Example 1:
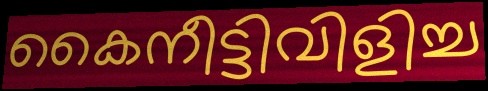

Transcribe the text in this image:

കൈനീട്ടിവിളിച്ച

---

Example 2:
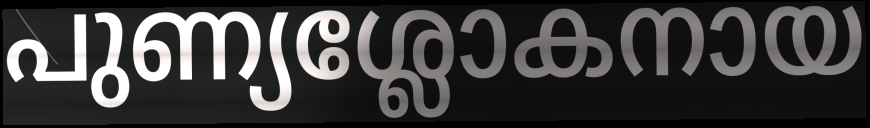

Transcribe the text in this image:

പുണ്യശ്ലോകനായ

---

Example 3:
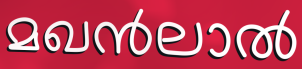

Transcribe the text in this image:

മഖൻലാൽ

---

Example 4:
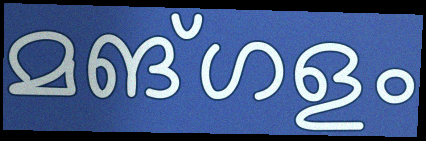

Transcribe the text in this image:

മങ്ഗളം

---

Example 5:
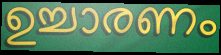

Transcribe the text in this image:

ഉച്ചാരണം